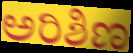
ಅರಿಶಿಣ